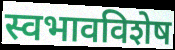
स्वभावविशेष